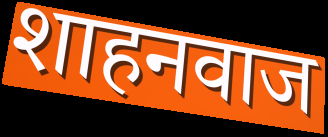
शाहनवाज